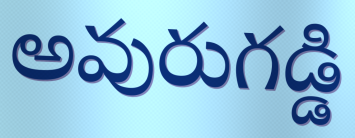
అవురుగడ్డి